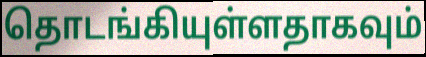
தொடங்கியுள்ளதாகவும்